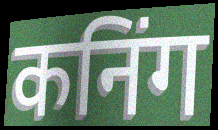
कनिंग